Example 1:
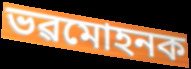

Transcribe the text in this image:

ভৱমোহনক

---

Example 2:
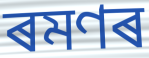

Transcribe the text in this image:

ৰমণৰ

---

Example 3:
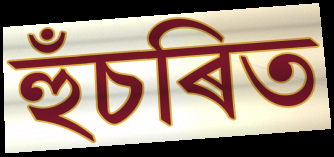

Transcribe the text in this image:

হুঁচৰিত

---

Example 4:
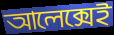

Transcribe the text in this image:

আলেক্সেই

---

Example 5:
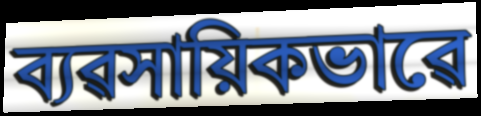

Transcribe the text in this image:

ব্যৱসায়িকভাৱে